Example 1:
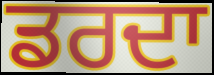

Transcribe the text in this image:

ਡਰਦਾ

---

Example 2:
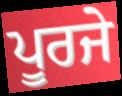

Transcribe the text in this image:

ਪੂਰਜੇ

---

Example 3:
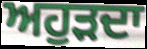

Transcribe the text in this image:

ਅਹੁੜਦਾ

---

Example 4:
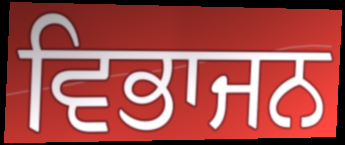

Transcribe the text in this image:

ਵਿਭਾਜਨ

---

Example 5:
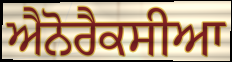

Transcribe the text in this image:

ਐਨੋਰੈਕਸੀਆ